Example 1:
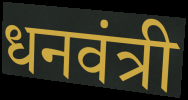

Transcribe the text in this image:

धनवंत्री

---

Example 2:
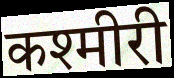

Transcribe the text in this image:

कश्‍मीरी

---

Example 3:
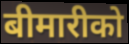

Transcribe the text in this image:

बीमारीको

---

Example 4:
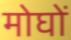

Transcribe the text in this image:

मोघों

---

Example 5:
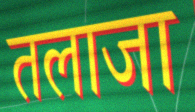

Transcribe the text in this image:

तलाजा